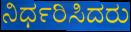
ನಿರ್ಧರಿಸಿದರು